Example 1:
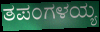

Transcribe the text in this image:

ತಪಂಗಳಯ್ಯ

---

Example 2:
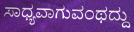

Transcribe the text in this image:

ಸಾಧ್ಯವಾಗುವಂಥದ್ದು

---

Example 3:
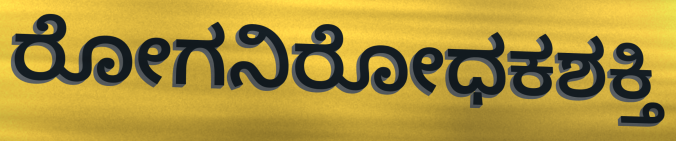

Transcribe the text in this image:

ರೋಗನಿರೋಧಕಶಕ್ತಿ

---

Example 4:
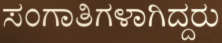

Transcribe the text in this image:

ಸಂಗಾತಿಗಳಾಗಿದ್ದರು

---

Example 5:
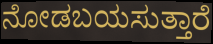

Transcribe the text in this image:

ನೋಡಬಯಸುತ್ತಾರೆ